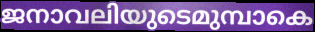
ജനാവലിയുടെമുമ്പാകെ